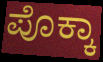
ಪೊಕ್ಕಾ